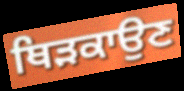
ਥਿੜਕਾਉਣ